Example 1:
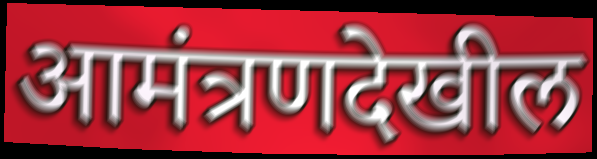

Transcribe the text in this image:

आमंत्रणदेखील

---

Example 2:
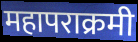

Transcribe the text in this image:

महापराक्रमी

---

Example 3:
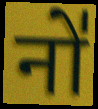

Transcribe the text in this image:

नो॑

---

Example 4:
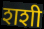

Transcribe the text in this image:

शशी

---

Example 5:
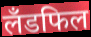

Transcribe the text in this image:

लँडफिल